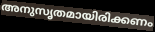
അനുസൃതമായിരിക്കണം